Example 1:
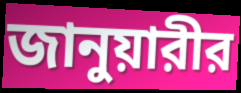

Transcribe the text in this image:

জানুয়ারীর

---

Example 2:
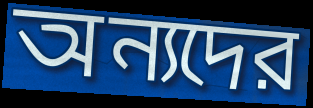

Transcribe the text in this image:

অন্যদের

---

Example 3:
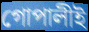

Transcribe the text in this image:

গোপালীই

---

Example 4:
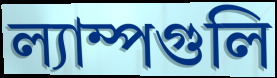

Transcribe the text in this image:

ল্যাম্পগুলি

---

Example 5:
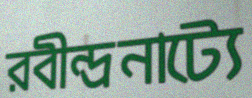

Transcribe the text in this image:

রবীন্দ্রনাট্যে